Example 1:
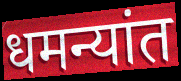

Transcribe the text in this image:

धमन्यांत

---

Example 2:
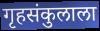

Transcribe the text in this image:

गृहसंकुलाला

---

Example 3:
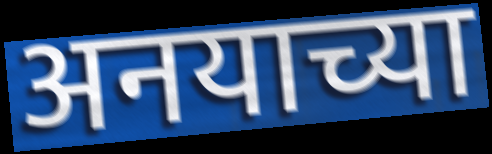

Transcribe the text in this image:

अनयाच्या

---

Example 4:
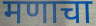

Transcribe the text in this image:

मणाचा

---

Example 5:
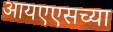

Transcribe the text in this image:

आयएएसच्या